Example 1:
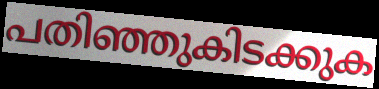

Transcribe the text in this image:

പതിഞ്ഞുകിടക്കുക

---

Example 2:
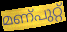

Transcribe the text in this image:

മണ്പുറ്റ്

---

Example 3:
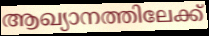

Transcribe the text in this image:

ആഖ്യാനത്തിലേക്ക്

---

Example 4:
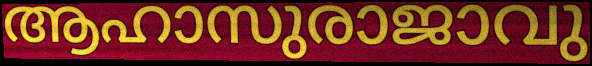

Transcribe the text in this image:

ആഹാസുരാജാവു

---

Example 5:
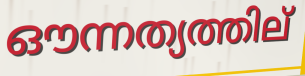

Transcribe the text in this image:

ഔന്നത്യത്തില്